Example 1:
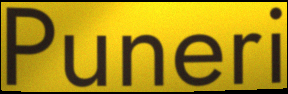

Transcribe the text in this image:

Puneri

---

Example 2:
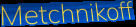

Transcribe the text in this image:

Metchnikoff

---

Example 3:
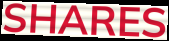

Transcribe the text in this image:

SHARES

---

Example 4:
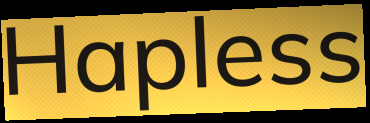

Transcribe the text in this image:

Hapless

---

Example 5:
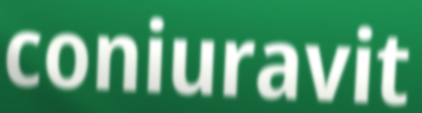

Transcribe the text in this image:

coniuravit